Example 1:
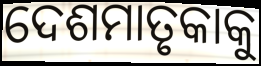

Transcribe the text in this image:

ଦେଶମାତୃକାକୁ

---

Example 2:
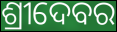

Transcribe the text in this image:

ଶ୍ରୀଦେବର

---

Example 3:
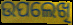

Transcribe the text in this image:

ଉପଲେଖି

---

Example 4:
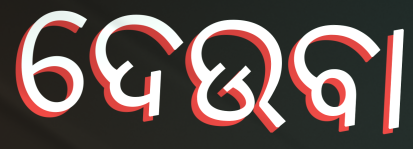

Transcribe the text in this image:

ଦେଉବା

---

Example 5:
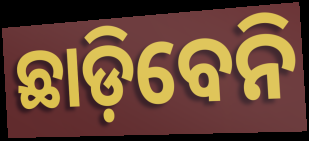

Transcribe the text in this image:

ଛାଡ଼ିବେନି